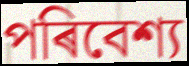
পৰিবেশ্য